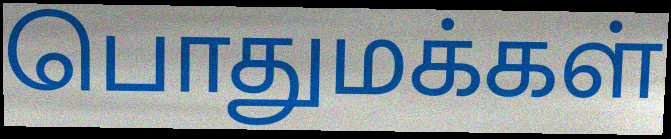
பொதுமக்கள்